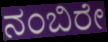
ನಂಬಿರೇ